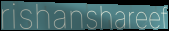
rishanshareef